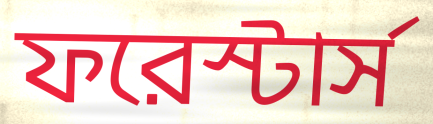
ফরেস্টার্স